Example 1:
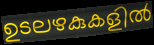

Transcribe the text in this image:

ഉടലഴകുകളിൽ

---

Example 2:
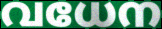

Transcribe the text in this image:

വധേന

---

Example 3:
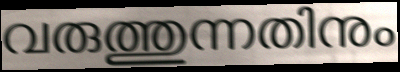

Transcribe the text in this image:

വരുത്തുന്നതിനും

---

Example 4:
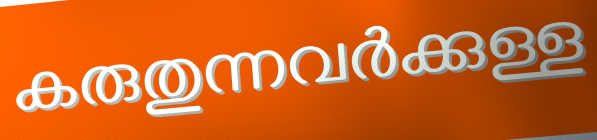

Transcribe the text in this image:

കരുതുന്നവർക്കുള്ള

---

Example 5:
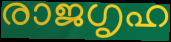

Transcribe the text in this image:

രാജഗൃഹ